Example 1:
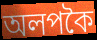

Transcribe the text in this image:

অলপকৈ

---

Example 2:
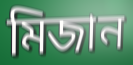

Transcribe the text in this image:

মিজান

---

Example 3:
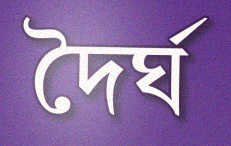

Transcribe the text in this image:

দৈৰ্ঘ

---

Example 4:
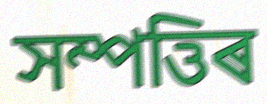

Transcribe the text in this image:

সম্পত্তিৰ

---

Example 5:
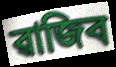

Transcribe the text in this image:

ৱাজিব